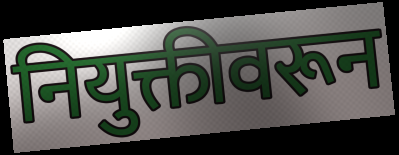
नियुक्तीवरून